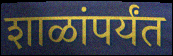
शाळांपर्यंत